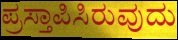
ಪ್ರಸ್ತಾಪಿಸಿರುವುದು